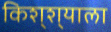
किश्श्याला